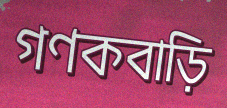
গণকবাড়ি